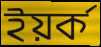
ইয়ৰ্ক